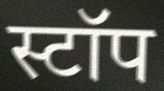
स्टॉप